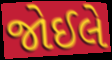
જોઈલે